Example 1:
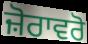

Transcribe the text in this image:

ਜ਼ੋਰਾਵਰੋ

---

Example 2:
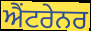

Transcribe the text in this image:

ਐਂਟਰੇਨਰ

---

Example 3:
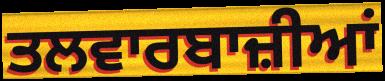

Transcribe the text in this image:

ਤਲਵਾਰਬਾਜ਼ੀਆਂ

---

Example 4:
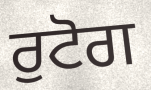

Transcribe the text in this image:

ਰੁਟੋਗ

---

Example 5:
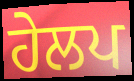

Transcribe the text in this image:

ਹੇਲਪ